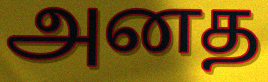
அனத